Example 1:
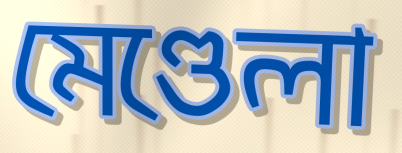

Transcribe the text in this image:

মেণ্ডেলা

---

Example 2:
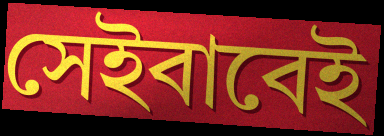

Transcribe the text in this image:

সেইবাবেই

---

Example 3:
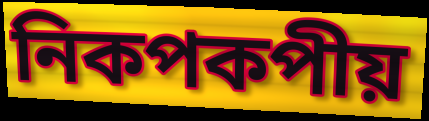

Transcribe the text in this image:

নিকপকপীয়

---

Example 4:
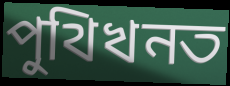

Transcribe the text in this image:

পুথিখনত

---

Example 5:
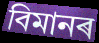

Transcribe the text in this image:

বিমানৰ